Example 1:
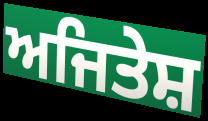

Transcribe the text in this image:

ਅਜਿਤੇਸ਼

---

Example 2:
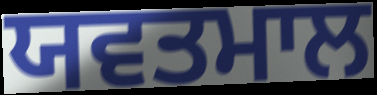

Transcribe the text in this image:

ਯਵਤਮਾਲ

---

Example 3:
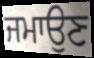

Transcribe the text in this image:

ਜਮਾਉਣ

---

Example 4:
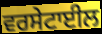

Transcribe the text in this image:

ਵਰਸੇਟਾਈਲ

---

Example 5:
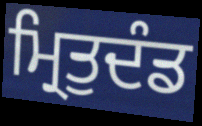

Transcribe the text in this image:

ਮ੍ਰਿਤੁਦੰਡ